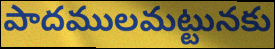
పాదములమట్టునకు